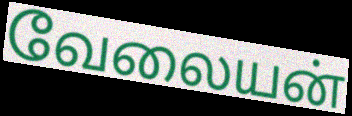
வேலையன்